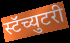
स्टॅच्युटरी